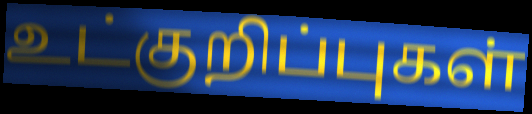
உட்குறிப்புகள்